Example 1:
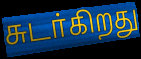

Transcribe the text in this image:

சுடர்கிறது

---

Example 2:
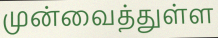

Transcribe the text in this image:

முன்வைத்துள்ள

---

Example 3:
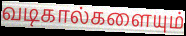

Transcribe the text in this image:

வடிகால்களையும்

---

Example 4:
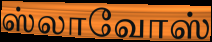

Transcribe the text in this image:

ஸ்லாவோஸ்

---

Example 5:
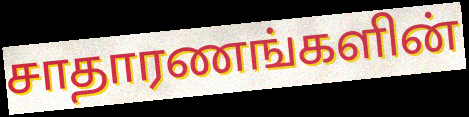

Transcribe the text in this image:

சாதாரணங்களின்